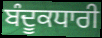
ਬੰਦੂਕਧਾਰੀ